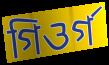
গিওৰ্গ